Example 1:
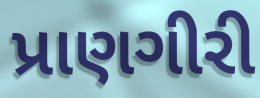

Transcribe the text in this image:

પ્રાણગીરી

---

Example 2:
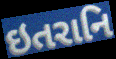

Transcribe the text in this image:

ઇતરાનિ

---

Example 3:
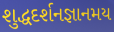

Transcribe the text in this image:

શુદ્ધદર્શનજ્ઞાનમય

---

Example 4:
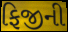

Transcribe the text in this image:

ફિજીની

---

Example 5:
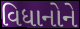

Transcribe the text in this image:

વિધાનોને